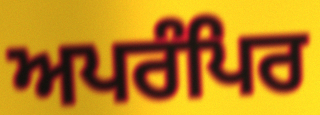
ਅਪਰੰਪਿਰ